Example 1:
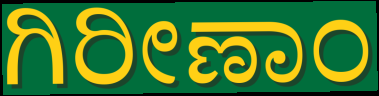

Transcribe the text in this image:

ಗಿರೀಣಾಂ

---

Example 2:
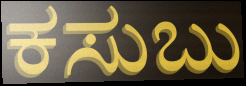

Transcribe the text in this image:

ಕಸುಬು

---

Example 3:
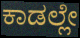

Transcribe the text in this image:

ಕಾಡಲ್ಲೇ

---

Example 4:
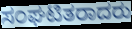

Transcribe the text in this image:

ಸಂಘಟಿತರಾದರು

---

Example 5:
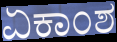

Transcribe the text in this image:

ಏಕಾಂಶ